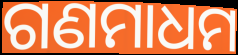
ଗଣମାଧମ